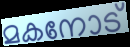
മകനോട്